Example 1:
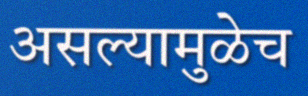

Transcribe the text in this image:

असल्यामुळेच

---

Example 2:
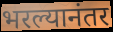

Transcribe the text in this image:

भरल्यानंतर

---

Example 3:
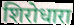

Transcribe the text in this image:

शिरोधारा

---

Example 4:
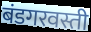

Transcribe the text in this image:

बंडगरवस्ती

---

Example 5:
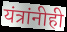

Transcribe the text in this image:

यंत्रांनीही